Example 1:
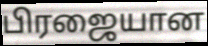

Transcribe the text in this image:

பிரஜையான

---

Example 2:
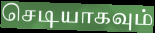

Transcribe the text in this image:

செடியாகவும்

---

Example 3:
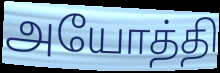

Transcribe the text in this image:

அயோத்தி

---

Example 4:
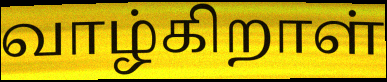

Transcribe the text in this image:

வாழ்கிறாள்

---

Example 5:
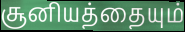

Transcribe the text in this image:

சூனியத்தையும்